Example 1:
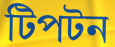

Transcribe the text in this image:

টিপটন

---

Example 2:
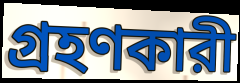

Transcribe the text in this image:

গ্রহণকারী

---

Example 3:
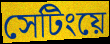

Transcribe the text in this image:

সেটিংয়ে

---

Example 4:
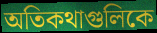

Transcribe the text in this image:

অতিকথাগুলিকে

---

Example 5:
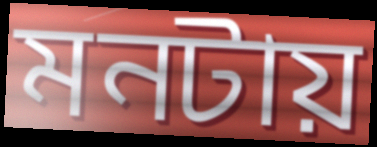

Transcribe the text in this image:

মনটায়